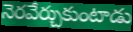
నెరవేర్చుకుంటాడు